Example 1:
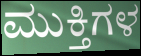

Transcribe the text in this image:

ಮುಕ್ತಿಗಳ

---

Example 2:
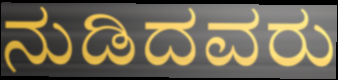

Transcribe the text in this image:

ನುಡಿದವರು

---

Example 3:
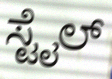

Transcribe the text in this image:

ಸ್ಟೈಲ್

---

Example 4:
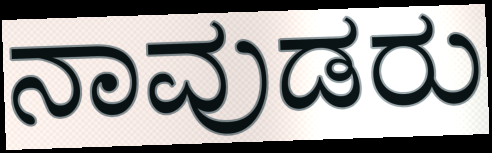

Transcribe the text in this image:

ನಾವುಡರು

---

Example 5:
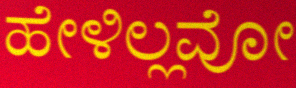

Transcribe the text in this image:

ಹೇಳಿಲ್ಲವೋ